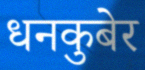
धनकुबेर